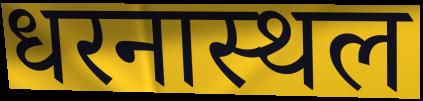
धरनास्थल